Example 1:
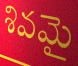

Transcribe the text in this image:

శివమై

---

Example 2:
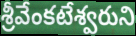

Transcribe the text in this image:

శ్రీవేంకటేశ్వరుని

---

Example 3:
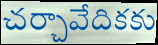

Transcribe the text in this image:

చర్చావేదికకు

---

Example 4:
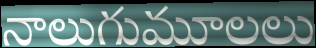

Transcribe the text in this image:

నాలుగుమూలలు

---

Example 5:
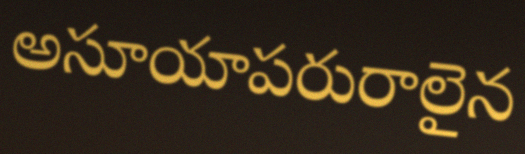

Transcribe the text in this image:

అసూయాపరురాలైన